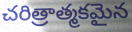
చరిత్రాత్మకమైన